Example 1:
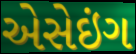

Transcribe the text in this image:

એસેઇંગ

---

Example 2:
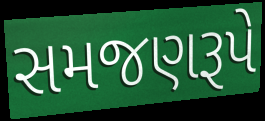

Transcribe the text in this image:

સમજણરૂપે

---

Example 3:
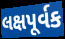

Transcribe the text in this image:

લક્ષપૂર્વક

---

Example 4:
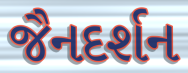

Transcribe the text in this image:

જૈનદર્શન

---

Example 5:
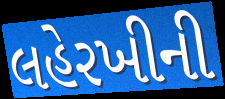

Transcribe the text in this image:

લહેરખીની